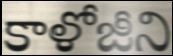
కాళోజీని